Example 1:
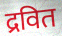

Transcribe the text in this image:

द्रवित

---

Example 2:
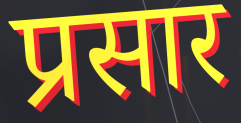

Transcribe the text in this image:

प्रसार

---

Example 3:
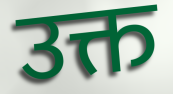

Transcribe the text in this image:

उक्त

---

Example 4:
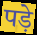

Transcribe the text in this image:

पड़े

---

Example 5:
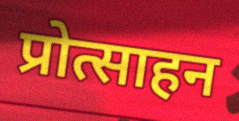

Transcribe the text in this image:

प्रोत्साहन